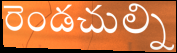
రెండచుల్ని